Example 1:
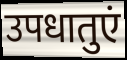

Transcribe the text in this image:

उपधातुएं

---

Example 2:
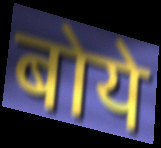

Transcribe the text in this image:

बोये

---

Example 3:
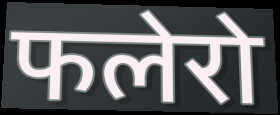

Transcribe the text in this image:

फलेरो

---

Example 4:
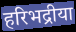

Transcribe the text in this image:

हरिभद्रीया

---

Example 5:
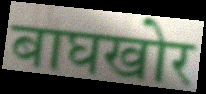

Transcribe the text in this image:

बाघखोर